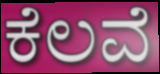
ಕೆಲವೆ